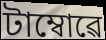
টাম্বোৱে